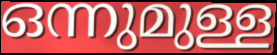
ഒന്നുമുള്ള